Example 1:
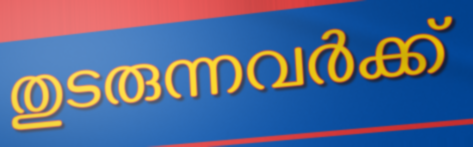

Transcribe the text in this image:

തുടരുന്നവർക്ക്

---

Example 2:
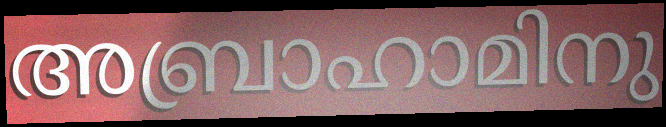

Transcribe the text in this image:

അബ്രാഹാമിനു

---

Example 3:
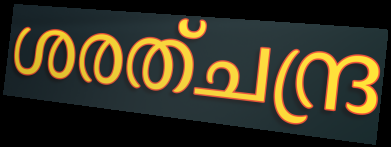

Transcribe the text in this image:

ശരത്ചന്ദ്ര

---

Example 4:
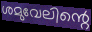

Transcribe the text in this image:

ശമുവേലിന്റെ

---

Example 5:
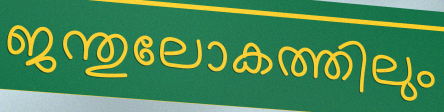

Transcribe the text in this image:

ജന്തുലോകത്തിലും